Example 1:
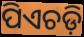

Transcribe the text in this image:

ପିଏଚଡ଼ି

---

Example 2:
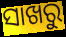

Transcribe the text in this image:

ସାଖରୁ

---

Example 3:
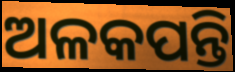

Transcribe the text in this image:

ଅଳକପନ୍ତି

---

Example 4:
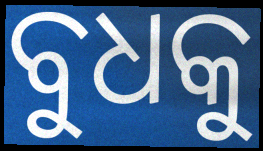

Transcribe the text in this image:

ବୁଧକୁ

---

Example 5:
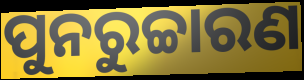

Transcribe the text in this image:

ପୁନରୁଚ୍ଚାରଣ